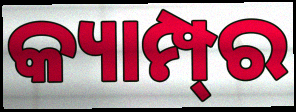
କ୍ୟାମ୍ପ୍‍ର